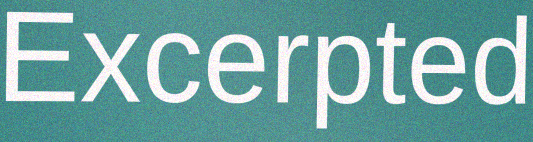
Excerpted